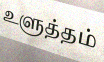
உளுத்தம்